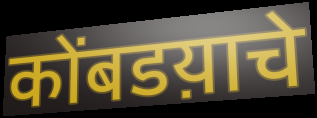
कोंबडय़ाचे